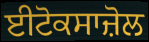
ਈਟੋਕਸਾਜ਼ੋਲ